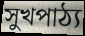
সুখপাঠ্য